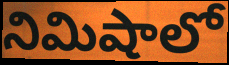
నిమిషాలో